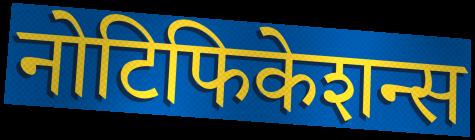
नोटिफिकेशन्स